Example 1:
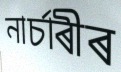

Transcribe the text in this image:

নাৰ্চাৰীৰ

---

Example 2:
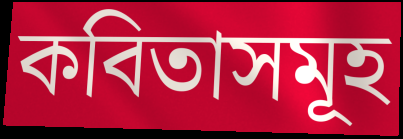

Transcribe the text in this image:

কবিতাসমূহ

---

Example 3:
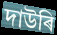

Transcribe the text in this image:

দাউৰি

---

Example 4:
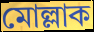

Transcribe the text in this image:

মোল্লাক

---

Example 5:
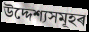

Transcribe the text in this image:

উদ্দেশ্যসমূহৰ